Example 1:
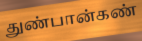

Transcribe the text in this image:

துண்பான்கண்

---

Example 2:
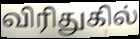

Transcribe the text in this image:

விரிதுகில்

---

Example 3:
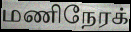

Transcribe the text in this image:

மணிநேரக்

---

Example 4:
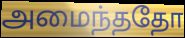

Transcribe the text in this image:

அமைந்ததோ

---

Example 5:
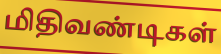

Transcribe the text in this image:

மிதிவண்டிகள்